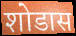
शोडास